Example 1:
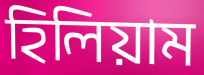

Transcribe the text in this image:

হিলিয়াম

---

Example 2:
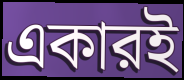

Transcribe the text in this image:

একারই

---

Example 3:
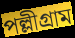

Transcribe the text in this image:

পল্লীগ্রাম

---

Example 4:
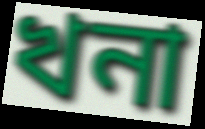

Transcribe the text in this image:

খনা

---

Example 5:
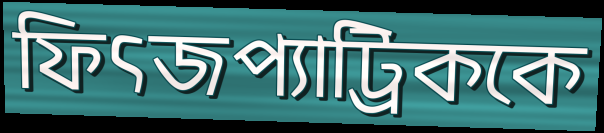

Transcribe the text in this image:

ফিৎজপ্যাট্রিককে